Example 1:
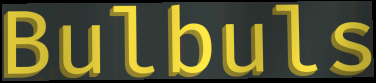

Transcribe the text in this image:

Bulbuls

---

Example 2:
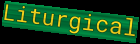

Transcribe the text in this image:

Liturgical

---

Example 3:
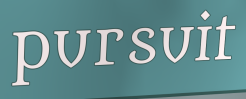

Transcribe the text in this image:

pursuit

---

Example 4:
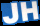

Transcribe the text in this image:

JH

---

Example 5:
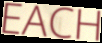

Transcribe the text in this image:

EACH